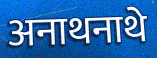
अनाथनाथे